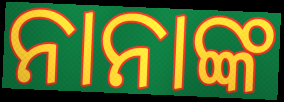
ନାନାଙ୍କ